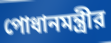
পোধানমন্ত্রীর